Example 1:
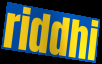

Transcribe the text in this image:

riddhi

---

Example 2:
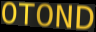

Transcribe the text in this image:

OTOND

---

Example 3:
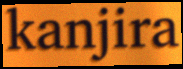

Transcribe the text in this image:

kanjira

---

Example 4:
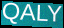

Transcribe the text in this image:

QALY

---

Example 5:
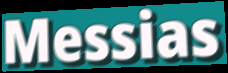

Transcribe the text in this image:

Messias